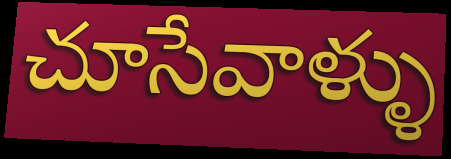
చూసేవాళ్ళు